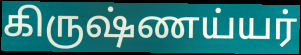
கிருஷ்ணய்யர்